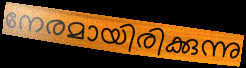
നേരമായിരിക്കുന്നു